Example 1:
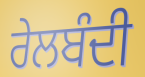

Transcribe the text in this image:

ਰੇਲਬੰਦੀ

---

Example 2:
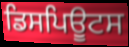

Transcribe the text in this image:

ਡਿਸਪਿਊਟਸ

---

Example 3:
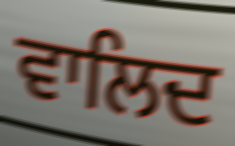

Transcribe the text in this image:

ਵਾਲਿਦ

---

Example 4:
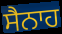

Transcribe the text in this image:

ਸੈਨਾਹ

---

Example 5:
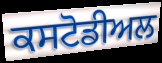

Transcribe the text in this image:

ਕਸਟੋਡੀਅਲ